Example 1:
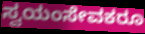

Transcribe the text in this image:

ಸ್ವಯಂಸೇವಕರೂ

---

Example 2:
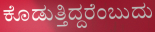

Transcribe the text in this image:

ಕೊಡುತ್ತಿದ್ದರೆಂಬುದು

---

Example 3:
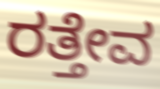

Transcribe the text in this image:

ರತ್ತೇವ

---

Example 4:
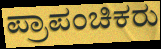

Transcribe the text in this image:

ಪ್ರಾಪಂಚಿಕರು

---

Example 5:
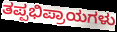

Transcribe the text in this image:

ತಪ್ಪಭಿಪ್ರಾಯಗಳು